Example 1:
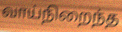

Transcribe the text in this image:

வாய்நிறைந்த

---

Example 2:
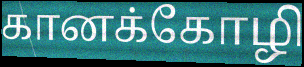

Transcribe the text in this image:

கானக்கோழி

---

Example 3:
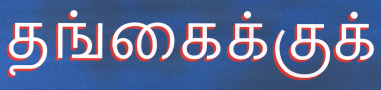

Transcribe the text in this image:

தங்கைக்குக்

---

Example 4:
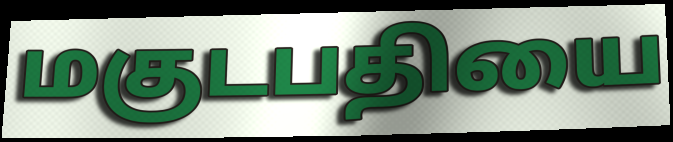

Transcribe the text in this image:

மகுடபதியை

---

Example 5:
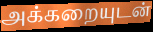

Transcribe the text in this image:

அக்கறையுடன்